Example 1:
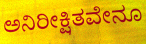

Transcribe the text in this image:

ಅನಿರೀಕ್ಷಿತವೇನೂ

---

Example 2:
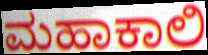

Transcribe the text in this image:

ಮಹಾಕಾಲಿ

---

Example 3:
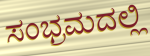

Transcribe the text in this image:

ಸಂಭ್ರಮದಲ್ಲಿ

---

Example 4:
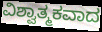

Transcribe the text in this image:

ವಿಶ್ವಾತ್ಮಕವಾದ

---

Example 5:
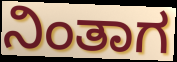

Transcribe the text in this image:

ನಿಂತಾಗ